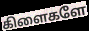
கிளைகளே